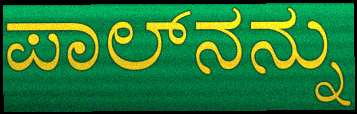
ಪಾಲ್‍ನನ್ನು